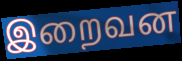
இறைவன